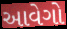
આવેગો